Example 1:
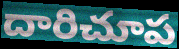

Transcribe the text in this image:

దారిచూప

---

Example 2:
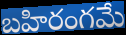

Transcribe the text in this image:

బహిరంగమే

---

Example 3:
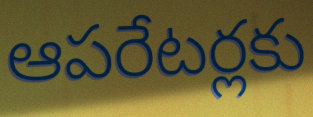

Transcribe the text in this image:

ఆపరేటర్లకు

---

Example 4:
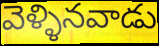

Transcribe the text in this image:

వెళ్ళినవాడు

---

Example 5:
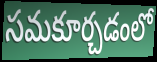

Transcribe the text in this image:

సమకూర్చడంలో